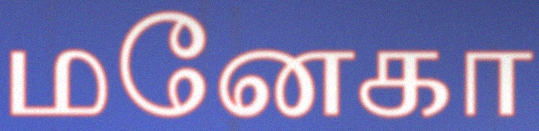
மனேகா